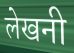
लेखनी